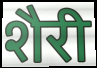
शैरी